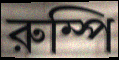
রুম্পি